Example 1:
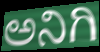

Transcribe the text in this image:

ಅನಿಗಿ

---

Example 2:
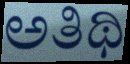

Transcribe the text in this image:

ಅತಿಥಿ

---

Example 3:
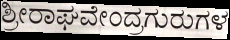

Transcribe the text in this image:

ಶ್ರೀರಾಘವೇಂದ್ರಗುರುಗಳ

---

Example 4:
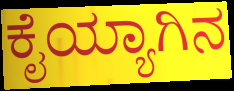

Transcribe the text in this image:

ಕೈಯ್ಯಾಗಿನ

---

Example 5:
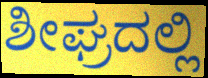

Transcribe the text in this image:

ಶೀಘ್ರದಲ್ಲಿ